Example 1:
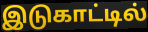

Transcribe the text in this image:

இடுகாட்டில்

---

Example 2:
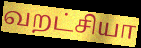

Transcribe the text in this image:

வறட்சியா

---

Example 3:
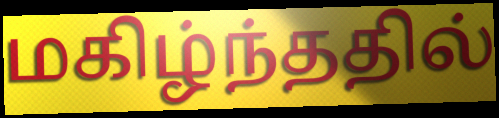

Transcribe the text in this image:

மகிழ்ந்ததில்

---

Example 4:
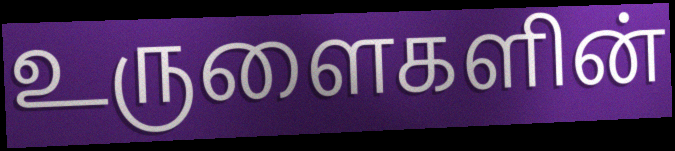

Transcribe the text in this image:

உருளைகளின்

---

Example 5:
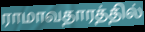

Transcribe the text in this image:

ராமாவதாரத்தில்